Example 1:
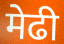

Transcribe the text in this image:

मेढी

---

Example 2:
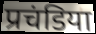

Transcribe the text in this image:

प्रचंडिया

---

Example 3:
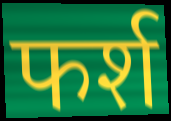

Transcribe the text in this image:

फर्श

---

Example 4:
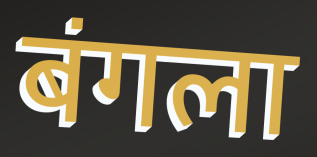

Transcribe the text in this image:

बंगला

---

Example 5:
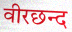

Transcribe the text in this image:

वीरछन्द